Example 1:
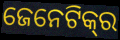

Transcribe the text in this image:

ଜେନେଟିକ୍‌ର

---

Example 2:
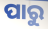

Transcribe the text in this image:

ପାରୁ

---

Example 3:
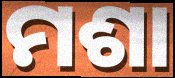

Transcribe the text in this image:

ମଶା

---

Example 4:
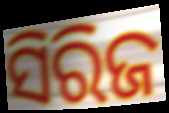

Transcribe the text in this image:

ସିରିଜ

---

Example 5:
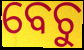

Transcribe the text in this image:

ବେଚୁ